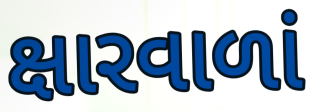
ક્ષારવાળાં